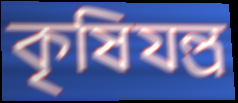
কৃষিযন্ত্র